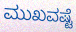
ಮುಖವಷ್ಟೆ